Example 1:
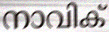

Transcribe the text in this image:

നാവിക്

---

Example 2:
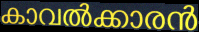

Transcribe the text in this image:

കാവൽക്കാരൻ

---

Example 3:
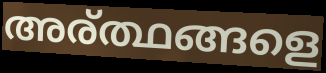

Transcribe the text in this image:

അര്ത്ഥങ്ങളെ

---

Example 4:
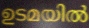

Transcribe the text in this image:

ഉടമയിൽ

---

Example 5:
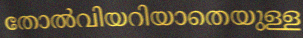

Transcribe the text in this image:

തോൽവിയറിയാതെയുള്ള